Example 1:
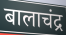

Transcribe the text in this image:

बालाचंद्र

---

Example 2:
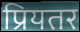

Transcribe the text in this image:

प्रियतर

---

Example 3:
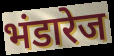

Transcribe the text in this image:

भंडारेज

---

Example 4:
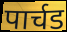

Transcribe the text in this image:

पार्चड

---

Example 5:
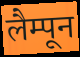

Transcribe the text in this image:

लैम्पून